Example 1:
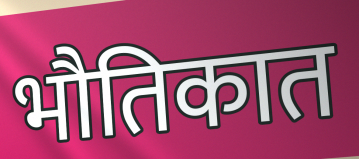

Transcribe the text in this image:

भौतिकात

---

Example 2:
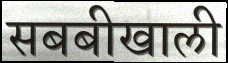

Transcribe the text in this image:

सबबीखाली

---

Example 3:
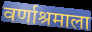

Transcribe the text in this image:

वर्णाश्रमाला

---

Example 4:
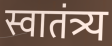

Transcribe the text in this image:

स्वातंत्र्य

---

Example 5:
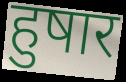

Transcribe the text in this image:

हुषार